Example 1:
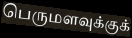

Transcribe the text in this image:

பெருமளவுக்குக்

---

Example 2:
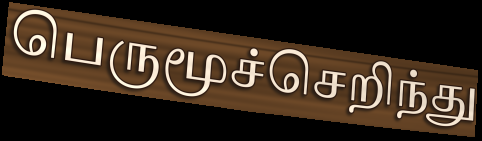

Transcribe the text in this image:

பெருமூச்செறிந்து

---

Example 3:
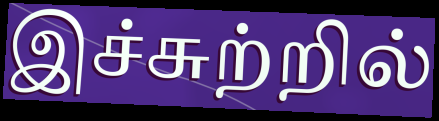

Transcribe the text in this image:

இச்சுற்றில்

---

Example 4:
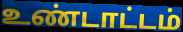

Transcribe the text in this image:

உண்டாட்டம்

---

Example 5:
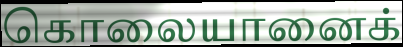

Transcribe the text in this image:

கொலையானைக்